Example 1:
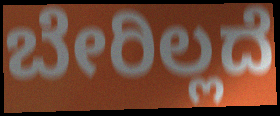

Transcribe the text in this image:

ಬೇರಿಲ್ಲದೆ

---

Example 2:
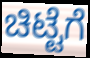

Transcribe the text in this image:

ಚಿಟ್ಟೆಗೆ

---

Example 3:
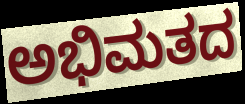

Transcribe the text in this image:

ಅಭಿಮತದ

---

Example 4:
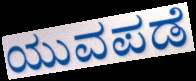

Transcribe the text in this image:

ಯುವಪಡೆ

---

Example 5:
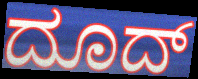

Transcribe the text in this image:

ದೂದ್